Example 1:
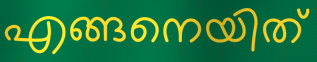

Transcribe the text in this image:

എങ്ങനെയിത്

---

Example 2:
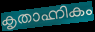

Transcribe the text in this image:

കൃതാഹ്നികം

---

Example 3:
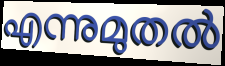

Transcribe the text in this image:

എന്നുമുതൽ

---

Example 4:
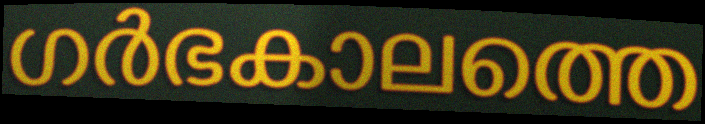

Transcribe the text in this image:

ഗർഭകാലത്തെ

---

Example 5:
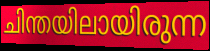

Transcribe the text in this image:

ചിന്തയിലായിരുന്ന